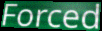
Forced